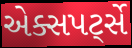
એક્સપર્ટ્સે